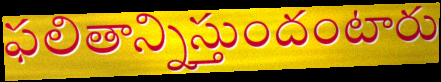
ఫలితాన్నిస్తుందంటారు